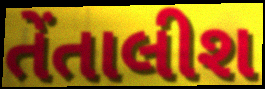
તેંતાલીશ